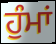
ਹੁੰਮਾਂ